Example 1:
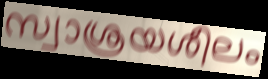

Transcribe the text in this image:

സ്വാശ്രയശീലം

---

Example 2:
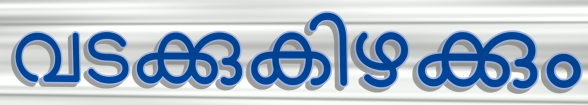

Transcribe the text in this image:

വടക്കുകിഴക്കും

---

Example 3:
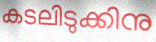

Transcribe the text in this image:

കടലിടുക്കിനു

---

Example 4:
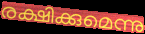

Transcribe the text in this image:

രക്ഷിക്കുമെന്നു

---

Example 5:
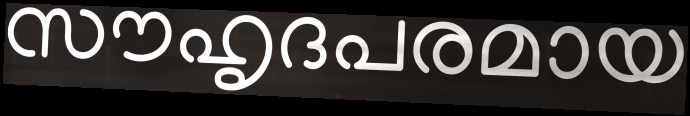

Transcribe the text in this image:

സൗഹൃദപരമായ